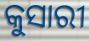
କୁସାରୀ